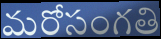
మరోసంగతి